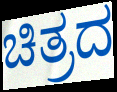
ಚಿತ್ರದ